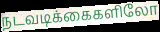
நடவடிக்கைகளிலோ